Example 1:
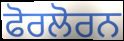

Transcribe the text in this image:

ਫੋਰਲੋਰਨ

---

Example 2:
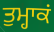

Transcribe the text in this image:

ਤੁਮ੍ਹਾਕਂ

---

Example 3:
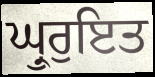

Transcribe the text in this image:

ਘ੍ਰੁਰੁਇਤ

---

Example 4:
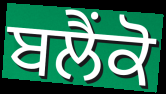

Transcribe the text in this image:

ਬਲੈਂਕੋ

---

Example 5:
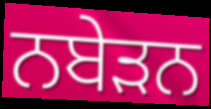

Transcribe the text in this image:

ਨਬੇੜਨ